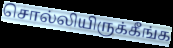
சொல்லியிருக்கீங்க